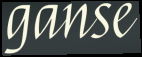
ganse